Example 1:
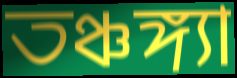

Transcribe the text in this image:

তঞ্চঙ্গ্যা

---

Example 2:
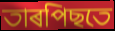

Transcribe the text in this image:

তাৰপিছতে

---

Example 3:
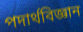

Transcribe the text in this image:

পদাৰ্থবিজ্ঞান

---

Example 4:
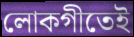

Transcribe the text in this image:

লোকগীতেই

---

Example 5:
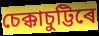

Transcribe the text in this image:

চেক্কাচুট্টিৰে